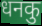
धनकु